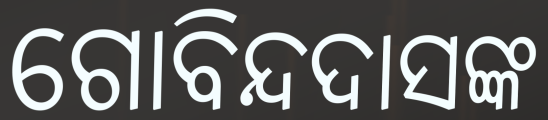
ଗୋବିନ୍ଦଦାସଙ୍କ